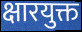
क्षारयुक्त